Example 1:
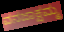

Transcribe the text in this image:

ವನಜಾಕ್ಷಮ್ಮ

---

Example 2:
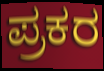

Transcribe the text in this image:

ಪ್ರಕರ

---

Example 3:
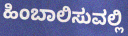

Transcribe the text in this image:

ಹಿಂಬಾಲಿಸುವಲ್ಲಿ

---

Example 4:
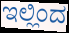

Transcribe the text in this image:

ಇಲ್ಲಿಂದ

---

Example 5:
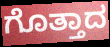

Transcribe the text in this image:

ಗೊತ್ತಾದ